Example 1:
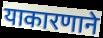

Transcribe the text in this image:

याकारणाने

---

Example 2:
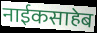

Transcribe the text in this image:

नाईकसाहेब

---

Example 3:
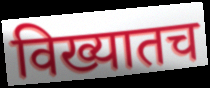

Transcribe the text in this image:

विख्यातच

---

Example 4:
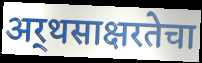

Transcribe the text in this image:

अर्थसाक्षरतेचा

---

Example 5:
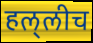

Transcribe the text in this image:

हल्लीच